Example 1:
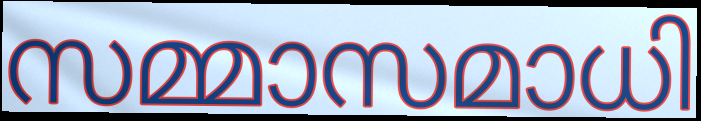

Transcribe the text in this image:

സമ്മാസമാധി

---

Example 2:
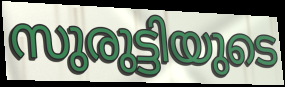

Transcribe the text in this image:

സുരുട്ടിയുടെ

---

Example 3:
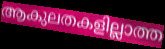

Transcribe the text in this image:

ആകുലതകളില്ലാത്ത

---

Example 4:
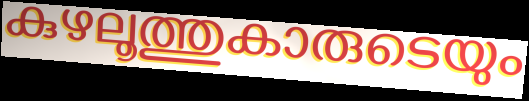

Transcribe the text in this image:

കുഴലൂത്തുകാരുടെയും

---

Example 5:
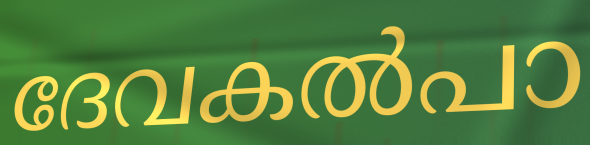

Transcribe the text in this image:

ദേവകൽപാ